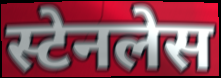
स्टेनलेस